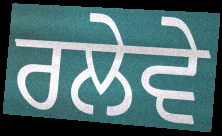
ਰਲੇਵੇ